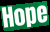
Hope